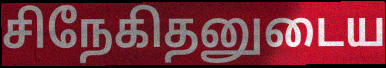
சிநேகிதனுடைய